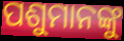
ପଶୁମାନଙ୍କୁ